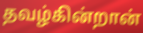
தவழ்கின்றான்